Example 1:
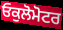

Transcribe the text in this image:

ਓਕੁਲੋਮੋਟਰ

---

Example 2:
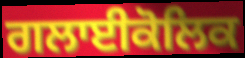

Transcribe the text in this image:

ਗਲਾਈਕੋਲਿਕ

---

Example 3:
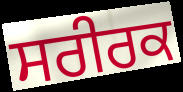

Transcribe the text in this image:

ਸਰੀਰਕ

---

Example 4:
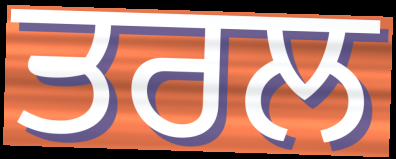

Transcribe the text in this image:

ਤਰਲ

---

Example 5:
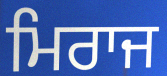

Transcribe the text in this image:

ਮਿਰਾਜ